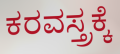
ಕರವಸ್ತ್ರಕ್ಕೆ